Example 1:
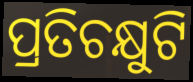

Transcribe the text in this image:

ପ୍ରତିଚକ୍ଷୁଟି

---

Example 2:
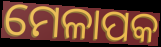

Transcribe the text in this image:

ମେଳାପକ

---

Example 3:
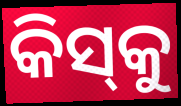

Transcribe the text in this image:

କିସ୍‌କୁ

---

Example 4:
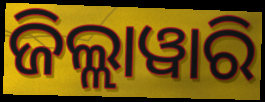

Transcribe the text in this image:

ଜିଲ୍ଲାୱାରି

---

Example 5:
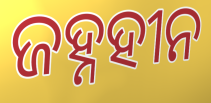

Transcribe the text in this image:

ଜହ୍ନହୀନ